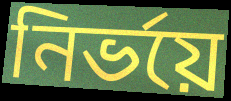
নির্ভয়ে